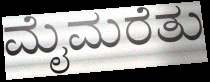
ಮೈಮರೆತು